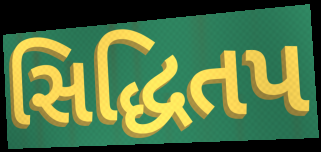
સિદ્ધિતપ